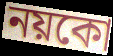
নয়কো